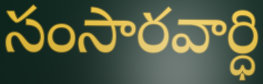
సంసారవార్ధి